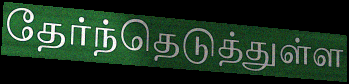
தேர்ந்தெடுத்துள்ள